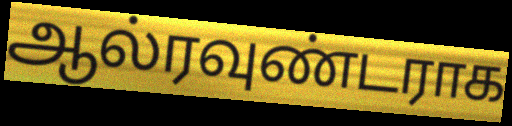
ஆல்ரவுண்டராக